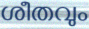
ശീതവും